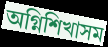
অগ্নিশিখাসম